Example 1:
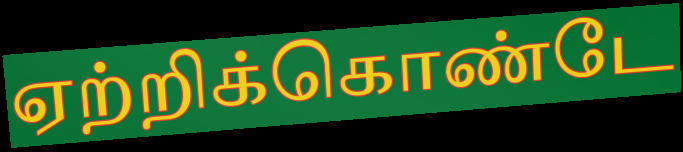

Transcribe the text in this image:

ஏற்றிக்கொண்டே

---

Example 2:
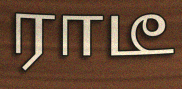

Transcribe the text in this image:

ராடீ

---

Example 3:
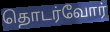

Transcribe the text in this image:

தொடர்வோர்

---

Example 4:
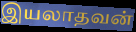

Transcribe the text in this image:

இயலாதவன்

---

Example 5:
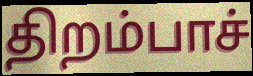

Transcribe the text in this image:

திறம்பாச்